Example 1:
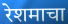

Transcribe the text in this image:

रेशमाचा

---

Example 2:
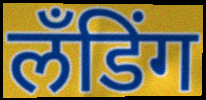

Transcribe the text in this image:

लँडिंग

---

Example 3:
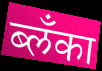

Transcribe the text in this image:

ब्लँका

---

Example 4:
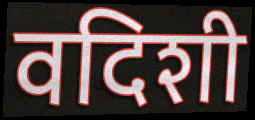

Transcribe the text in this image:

वदिशी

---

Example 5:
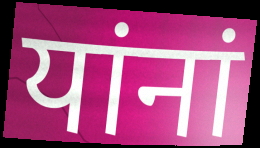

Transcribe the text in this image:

यांनां